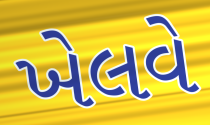
ખેલવે